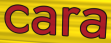
cara